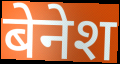
बेनेश